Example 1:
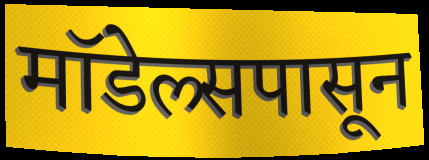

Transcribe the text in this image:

मॉडेल्सपासून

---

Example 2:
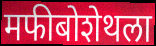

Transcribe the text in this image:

मफीबोशेथला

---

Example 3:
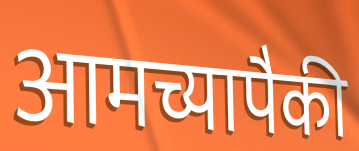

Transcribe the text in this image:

आमच्यापैकी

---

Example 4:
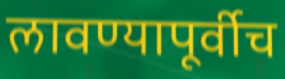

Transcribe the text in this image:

लावण्यापूर्वीच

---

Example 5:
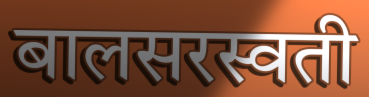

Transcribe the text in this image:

बालसरस्वती